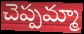
చెప్పమ్మా